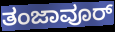
ತಂಜಾವೂರ್